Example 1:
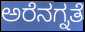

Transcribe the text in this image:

ಅರೆನಗ್ನತೆ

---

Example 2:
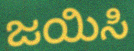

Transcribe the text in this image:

ಜಯಿಸಿ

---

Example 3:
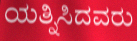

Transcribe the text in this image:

ಯತ್ನಿಸಿದವರು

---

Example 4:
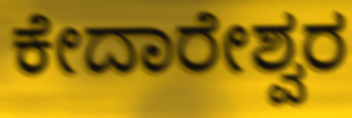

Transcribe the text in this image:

ಕೇದಾರೇಶ್ವರ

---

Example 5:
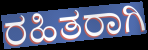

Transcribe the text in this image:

ರಹಿತರಾಗಿ